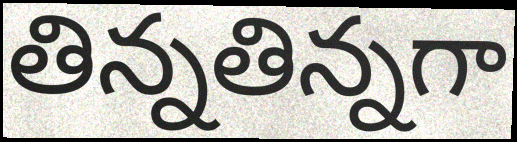
తిన్నతిన్నగా